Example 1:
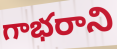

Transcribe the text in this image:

గాభరాని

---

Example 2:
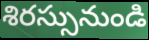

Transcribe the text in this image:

శిరస్సునుండి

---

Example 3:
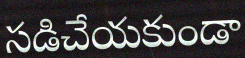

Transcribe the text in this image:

సడిచేయకుండా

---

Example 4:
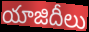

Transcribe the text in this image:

యాజిదీలు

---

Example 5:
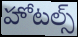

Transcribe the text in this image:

హోటల్స్